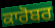
ਕਾਰੋਬਰ